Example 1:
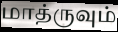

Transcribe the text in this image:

மாத்ருவும்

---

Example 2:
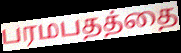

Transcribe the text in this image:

பரமபதத்தை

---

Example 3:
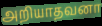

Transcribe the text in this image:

அறியாதவனா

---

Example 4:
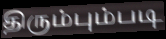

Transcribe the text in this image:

திரும்பும்படி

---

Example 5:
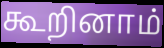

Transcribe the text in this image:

கூறினாம்